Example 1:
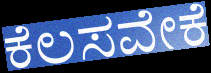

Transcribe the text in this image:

ಕೆಲಸವೇಕೆ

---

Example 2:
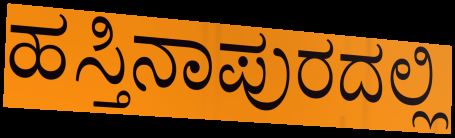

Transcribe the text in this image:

ಹಸ್ತಿನಾಪುರದಲ್ಲಿ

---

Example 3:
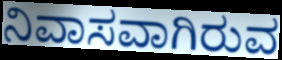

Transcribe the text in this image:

ನಿವಾಸವಾಗಿರುವ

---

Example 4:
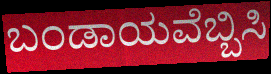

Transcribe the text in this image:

ಬಂಡಾಯವೆಬ್ಬಿಸಿ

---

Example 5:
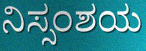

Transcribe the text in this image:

ನಿಸ್ಸಂಶಯ